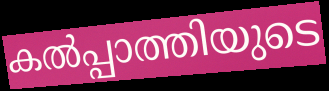
കൽപ്പാത്തിയുടെ